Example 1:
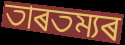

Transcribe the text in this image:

তাৰতম্যৰ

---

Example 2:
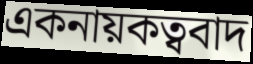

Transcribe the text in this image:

একনায়কত্ববাদ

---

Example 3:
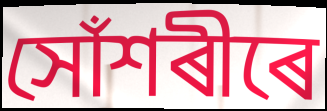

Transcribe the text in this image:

সোঁশৰীৰে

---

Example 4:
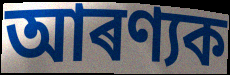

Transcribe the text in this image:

আৰণ্যক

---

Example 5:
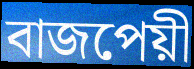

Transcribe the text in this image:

বাজপেয়ী